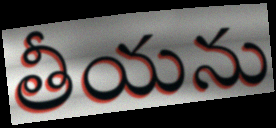
తీయను